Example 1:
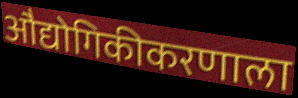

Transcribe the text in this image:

औद्योगिकीकरणाला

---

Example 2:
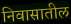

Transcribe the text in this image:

निवासातील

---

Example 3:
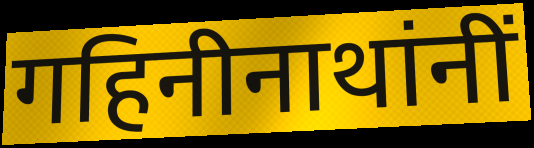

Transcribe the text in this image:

गहिनीनाथांनीं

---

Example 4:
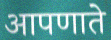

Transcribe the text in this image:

आपणाते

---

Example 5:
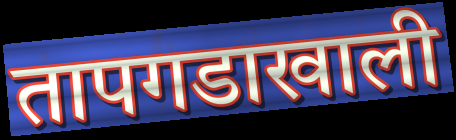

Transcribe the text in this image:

तापगडाखाली